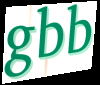
gbb